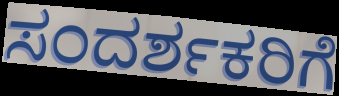
ಸಂದರ್ಶಕರಿಗೆ